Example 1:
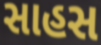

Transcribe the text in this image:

સાહસ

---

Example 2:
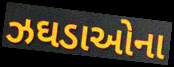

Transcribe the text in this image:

ઝઘડાઓના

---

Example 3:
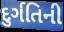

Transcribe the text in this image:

દુર્ગતિની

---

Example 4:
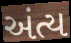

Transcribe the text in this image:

અંત્ય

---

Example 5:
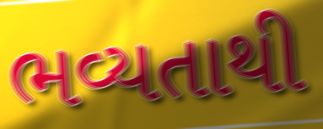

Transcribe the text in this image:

ભવ્યતાથી